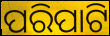
ପରିପାଟି